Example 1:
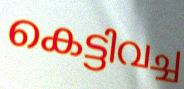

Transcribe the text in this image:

കെട്ടിവച്ച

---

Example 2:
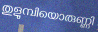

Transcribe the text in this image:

തുളുമ്പിയൊരുണ്ണി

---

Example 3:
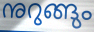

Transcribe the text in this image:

നുറുങ്ങും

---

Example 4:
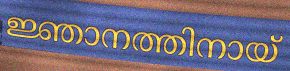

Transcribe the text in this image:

ജ്ഞാനത്തിനായ്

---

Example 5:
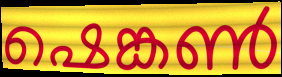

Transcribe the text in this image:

ഷെങ്കൺ